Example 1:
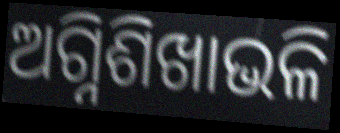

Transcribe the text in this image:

ଅଗ୍ନିଶିଖାଭଳି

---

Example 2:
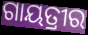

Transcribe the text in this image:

ଗାୟତ୍ରୀର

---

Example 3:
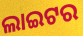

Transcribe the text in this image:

ଲାଇଟର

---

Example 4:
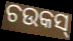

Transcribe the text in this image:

ଚଉକସ୍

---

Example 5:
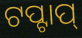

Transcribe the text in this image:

ଟପ୍ଟାପ୍